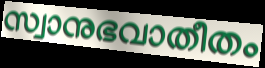
സ്വാനുഭവാതീതം